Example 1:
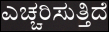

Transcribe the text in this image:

ಎಚ್ಚರಿಸುತ್ತಿದೆ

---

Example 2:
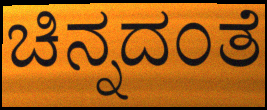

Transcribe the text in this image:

ಚಿನ್ನದಂತೆ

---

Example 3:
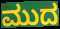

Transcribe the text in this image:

ಮುದ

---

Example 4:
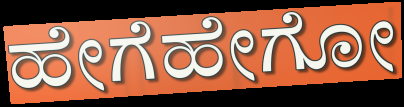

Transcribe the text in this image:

ಹೇಗೆಹೇಗೋ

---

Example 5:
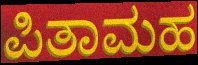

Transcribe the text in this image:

ಪಿತಾಮಹ